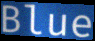
Blue